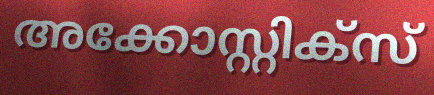
അക്കോസ്റ്റിക്സ്